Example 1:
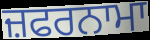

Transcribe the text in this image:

ਜ਼ਫਰਨਾਮਾ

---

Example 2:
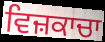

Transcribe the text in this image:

ਵਿਜ਼ਕਾਚਾ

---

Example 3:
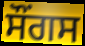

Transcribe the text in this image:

ਸੌਂਗਸ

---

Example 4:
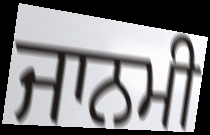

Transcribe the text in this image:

ਜਾਨਮੀ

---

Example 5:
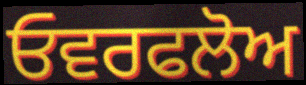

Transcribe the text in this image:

ਓਵਰਫਲੋਅ